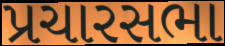
પ્રચારસભા